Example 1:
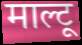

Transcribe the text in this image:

माल्टू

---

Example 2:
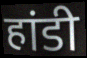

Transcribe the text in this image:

हांडी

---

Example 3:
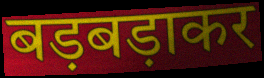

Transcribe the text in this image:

बड़बड़ाकर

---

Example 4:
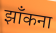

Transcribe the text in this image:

झाँकना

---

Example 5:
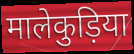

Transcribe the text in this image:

मालेकुड़िया